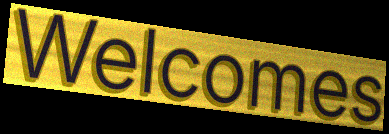
Welcomes